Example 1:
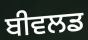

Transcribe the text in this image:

ਬੀਵਲਡ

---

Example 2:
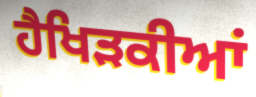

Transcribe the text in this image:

ਹੈਖਿੜਕੀਆਂ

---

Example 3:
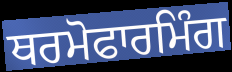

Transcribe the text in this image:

ਥਰਮੋਫਾਰਮਿੰਗ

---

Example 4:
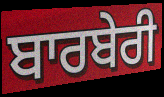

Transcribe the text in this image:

ਬਾਰਬੇਰੀ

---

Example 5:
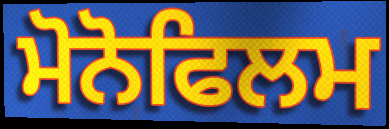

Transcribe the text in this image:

ਮੋਨੋਫਿਲਮ